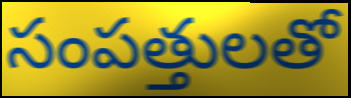
సంపత్తులతో